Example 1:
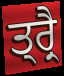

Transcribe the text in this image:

ਤ੍ਰ੍ਰੈ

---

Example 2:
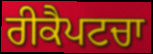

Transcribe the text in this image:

ਰੀਕੈਪਟਚਾ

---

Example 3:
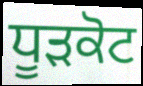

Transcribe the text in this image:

ਧੂੜਕੋਟ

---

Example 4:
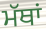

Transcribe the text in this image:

ਮੱਥਾਂ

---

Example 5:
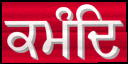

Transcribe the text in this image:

ਕਮੰਦਿ